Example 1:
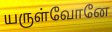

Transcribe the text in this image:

யருள்வோனே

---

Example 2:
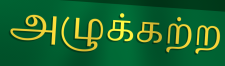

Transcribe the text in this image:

அழுக்கற்ற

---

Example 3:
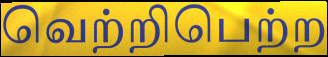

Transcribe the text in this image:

வெற்றிபெற்ற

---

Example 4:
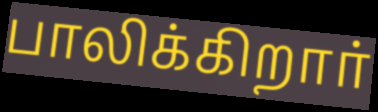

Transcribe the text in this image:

பாலிக்கிறார்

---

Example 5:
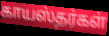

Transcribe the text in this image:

காயஸ்தர்கள்